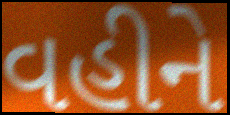
વહીને